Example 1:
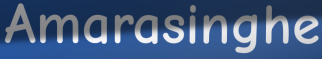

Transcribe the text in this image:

Amarasinghe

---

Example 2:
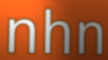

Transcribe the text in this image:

nhn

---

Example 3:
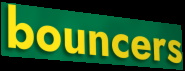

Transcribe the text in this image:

bouncers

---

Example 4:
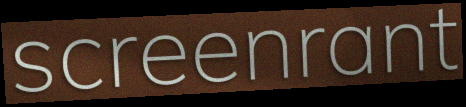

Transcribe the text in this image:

screenrant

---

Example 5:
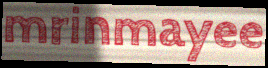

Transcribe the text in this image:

mrinmayee